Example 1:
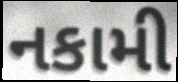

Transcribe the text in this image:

નકામી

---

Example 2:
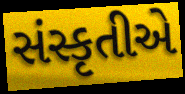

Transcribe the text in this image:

સંસ્કૃતીએ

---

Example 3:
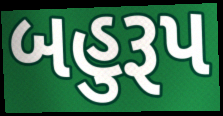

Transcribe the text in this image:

બહુરૂપ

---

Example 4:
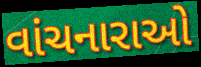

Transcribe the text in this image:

વાંચનારાઓ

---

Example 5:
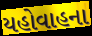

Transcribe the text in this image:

યહોવાહના